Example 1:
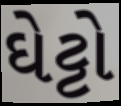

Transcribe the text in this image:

ઘેટ્ટો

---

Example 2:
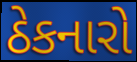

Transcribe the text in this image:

ઠેકનારો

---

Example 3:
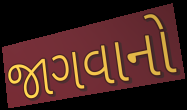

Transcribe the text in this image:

જાગવાનો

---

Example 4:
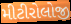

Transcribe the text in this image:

મીટીરોલોજી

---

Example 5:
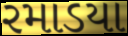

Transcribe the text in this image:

રમાડયા